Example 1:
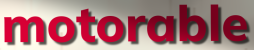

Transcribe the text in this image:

motorable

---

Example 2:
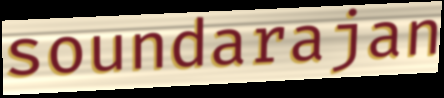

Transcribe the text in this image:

soundarajan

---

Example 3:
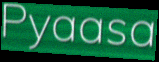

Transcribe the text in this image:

Pyaasa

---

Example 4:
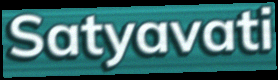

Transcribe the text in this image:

Satyavati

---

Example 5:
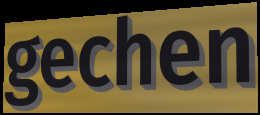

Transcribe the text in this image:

gechen